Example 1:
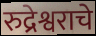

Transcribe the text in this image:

रुद्रेश्वराचे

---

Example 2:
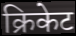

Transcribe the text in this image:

क्रिकेट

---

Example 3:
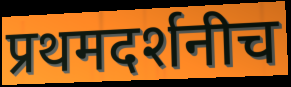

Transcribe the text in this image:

प्रथमदर्शनीच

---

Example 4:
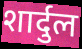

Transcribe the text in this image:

शार्दुल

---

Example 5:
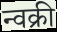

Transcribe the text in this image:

न्वक्री